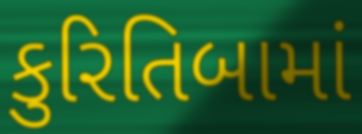
કુરિતિબામાં